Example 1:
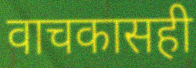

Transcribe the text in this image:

वाचकासही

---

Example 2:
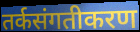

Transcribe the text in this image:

तर्कसंगतीकरण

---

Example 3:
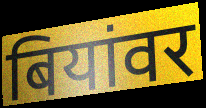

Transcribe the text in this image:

बियांवर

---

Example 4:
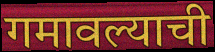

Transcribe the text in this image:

गमावल्याची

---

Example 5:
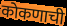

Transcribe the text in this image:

कोकणाची